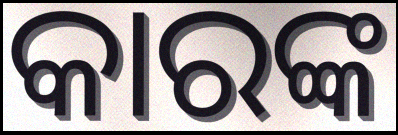
କାରଙ୍କ